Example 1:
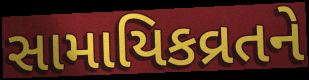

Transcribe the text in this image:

સામાયિકવ્રતને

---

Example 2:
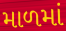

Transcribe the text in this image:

માળમાં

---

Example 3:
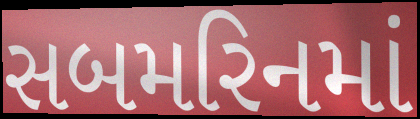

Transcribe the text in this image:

સબમરિનમાં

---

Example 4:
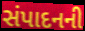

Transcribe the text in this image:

સંપાદનની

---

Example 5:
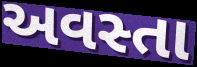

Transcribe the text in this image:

અવસ્તા